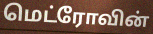
மெட்ரோவின்